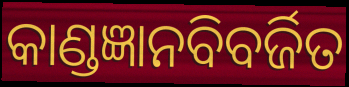
କାଣ୍ଡଜ୍ଞାନବିବର୍ଜିତ